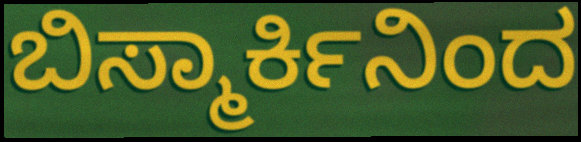
ಬಿಸ್ಮಾರ್ಕಿನಿಂದ